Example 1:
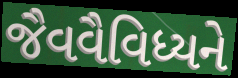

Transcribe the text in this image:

જૈવવૈવિધ્યને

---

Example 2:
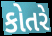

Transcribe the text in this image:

કોતરે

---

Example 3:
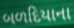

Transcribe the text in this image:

બળદિયાના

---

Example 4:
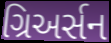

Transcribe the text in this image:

ગ્રિઅર્સન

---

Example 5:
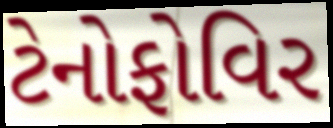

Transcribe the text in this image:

ટેનોફોવિર